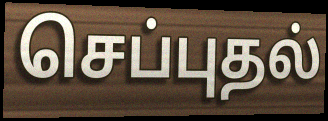
செப்புதல்